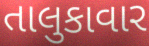
તાલુકાવાર